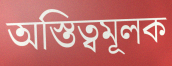
অস্তিত্বমূলক